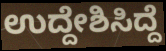
ಉದ್ದೇಶಿಸಿದ್ದೆ